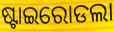
ଷ୍ଟାଇରୋଡଲା